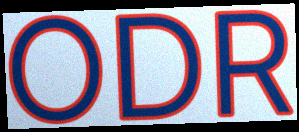
ODR